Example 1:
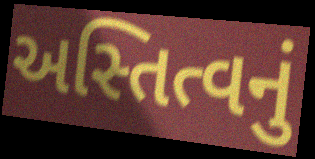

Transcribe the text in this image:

અસ્તિત્વનું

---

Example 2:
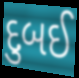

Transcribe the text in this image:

દુબઈ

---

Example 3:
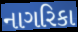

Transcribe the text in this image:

નાગરિકા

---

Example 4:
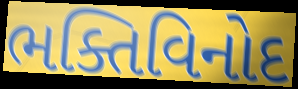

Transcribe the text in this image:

ભક્તિવિનોદ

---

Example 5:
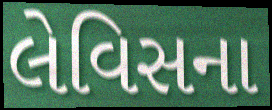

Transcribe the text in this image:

લેવિસના